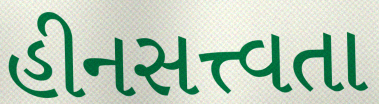
હીનસત્ત્વતા